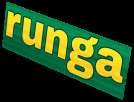
runga